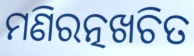
ମଣିରତ୍ନଖଚିତ